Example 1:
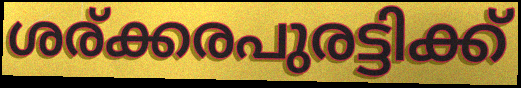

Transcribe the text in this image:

ശര്ക്കരപുരട്ടിക്ക്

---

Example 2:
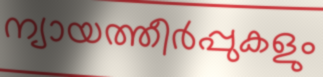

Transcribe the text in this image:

ന്യായത്തീർപ്പുകളും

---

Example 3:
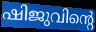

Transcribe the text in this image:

ഷിജുവിന്റെ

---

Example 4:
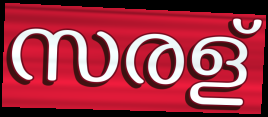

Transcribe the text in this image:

സരള്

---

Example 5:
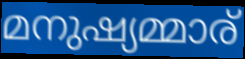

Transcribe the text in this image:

മനുഷ്യമ്മാര്